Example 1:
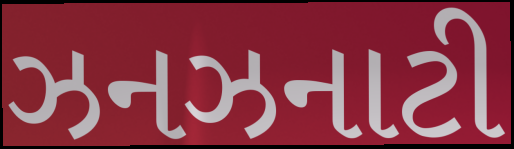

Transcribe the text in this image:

ઝનઝનાટી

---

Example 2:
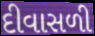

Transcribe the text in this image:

દીવાસળી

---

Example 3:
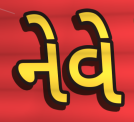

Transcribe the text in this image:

નેવે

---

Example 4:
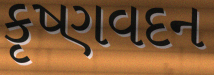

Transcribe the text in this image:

કૃષ્ણવદન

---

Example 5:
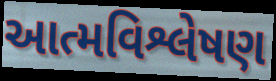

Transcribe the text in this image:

આત્મવિશ્લેષણ